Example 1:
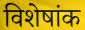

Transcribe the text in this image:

विशेषांक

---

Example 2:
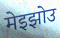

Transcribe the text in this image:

मेइझोउ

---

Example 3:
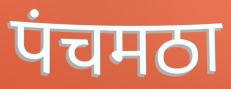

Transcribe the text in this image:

पंचमठा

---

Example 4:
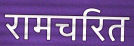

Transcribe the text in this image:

रामचरित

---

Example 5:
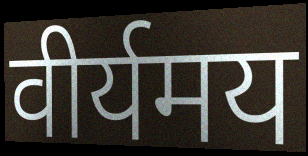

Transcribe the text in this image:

वीर्यमय